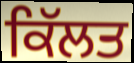
ਕਿੱਲਤ